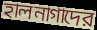
হালনাগাদের